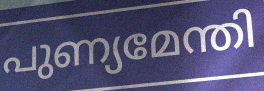
പുണ്യമേന്തി